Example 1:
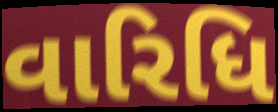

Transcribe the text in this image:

વારિધિ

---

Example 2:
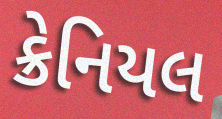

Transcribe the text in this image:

ક્રેનિયલ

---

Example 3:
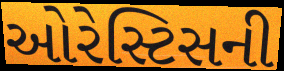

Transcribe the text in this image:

ઓરેસ્ટિસની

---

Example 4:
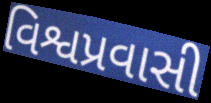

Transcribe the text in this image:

વિશ્વપ્રવાસી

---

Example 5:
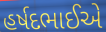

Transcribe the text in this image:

હર્ષદભાઈએ